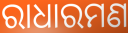
ରାଧାରମଣ